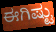
ಈಗಿಷ್ಟು